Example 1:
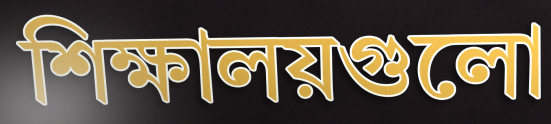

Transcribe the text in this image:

শিক্ষালয়গুলো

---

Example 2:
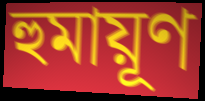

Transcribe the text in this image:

হুমায়ূণ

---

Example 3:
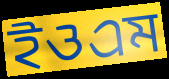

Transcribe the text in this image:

ইওএম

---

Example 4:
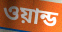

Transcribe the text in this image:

ওয়ান্ড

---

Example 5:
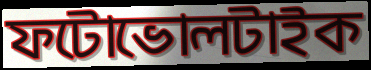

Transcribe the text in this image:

ফটোভোলটাইক